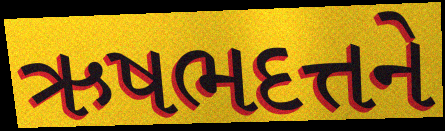
ઋષભદત્તને